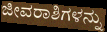
ಜೀವರಾಶಿಗಳನ್ನು